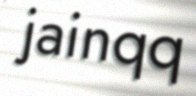
jainqq